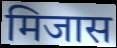
मिजास